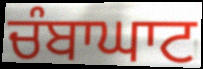
ਚੰਬਾਘਾਟ